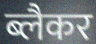
ब्लैकर